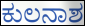
ಕುಲನಾಶ